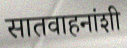
सातवाहनांशी